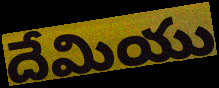
దేమియు